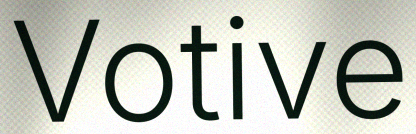
Votive